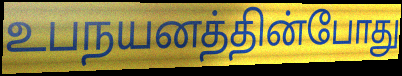
உபநயனத்தின்போது